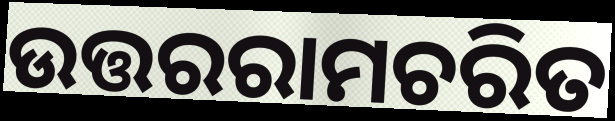
ଉତ୍ତରରାମଚରିତ